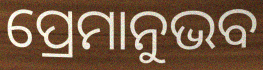
ପ୍ରେମାନୁଭବ